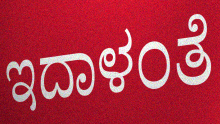
ಇದಾಳಂತೆ